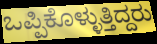
ಒಪ್ಪಿಕೊಳ್ಳುತ್ತಿದ್ದರು